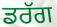
ਡਰੱਗ